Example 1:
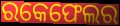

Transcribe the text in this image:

ରକେଫେଲର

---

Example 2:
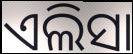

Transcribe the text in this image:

ଏଲିସା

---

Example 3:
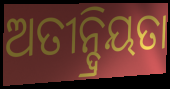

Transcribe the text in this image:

ଅତୀନ୍ଦ୍ରିୟତା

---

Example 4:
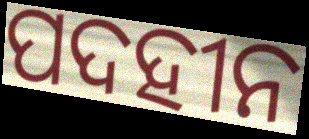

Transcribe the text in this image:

ପଦହୀନ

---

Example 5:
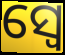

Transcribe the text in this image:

ସ୍ୱେ